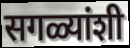
सगळ्यांशी